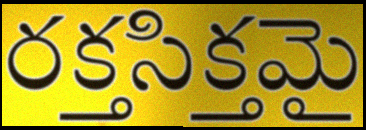
రక్తసిక్తమై